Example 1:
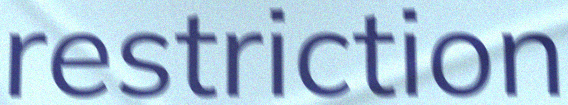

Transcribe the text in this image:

restriction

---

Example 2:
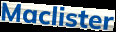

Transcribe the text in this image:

Maclister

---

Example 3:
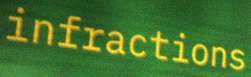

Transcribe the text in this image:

infractions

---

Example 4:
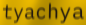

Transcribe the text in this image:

tyachya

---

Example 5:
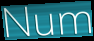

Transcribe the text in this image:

Num